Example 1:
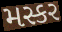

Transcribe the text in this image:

મસ્કર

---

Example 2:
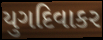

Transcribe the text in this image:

યુગદિવાકર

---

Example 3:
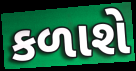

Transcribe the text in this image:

કળાશે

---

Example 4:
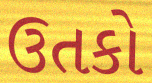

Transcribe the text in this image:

ઉતકો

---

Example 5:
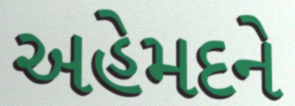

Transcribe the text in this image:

અહેમદને